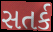
સતર્ક